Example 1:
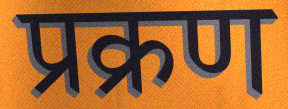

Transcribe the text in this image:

प्रक्रण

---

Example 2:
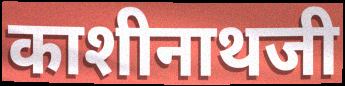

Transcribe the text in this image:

काशीनाथजी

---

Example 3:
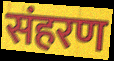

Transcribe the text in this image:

संहरण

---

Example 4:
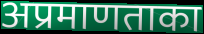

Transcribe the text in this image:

अप्रमाणताका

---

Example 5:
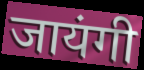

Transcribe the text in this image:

जायंगी